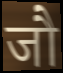
जौ